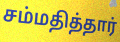
சம்மதித்தார்